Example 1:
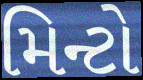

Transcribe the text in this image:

મિન્ટો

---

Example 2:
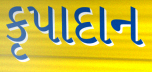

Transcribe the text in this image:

કૃપાદાન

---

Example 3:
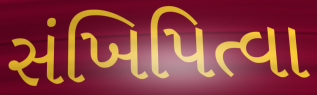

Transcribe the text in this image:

સંખિપિત્વા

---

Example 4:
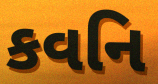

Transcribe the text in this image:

કવનિ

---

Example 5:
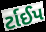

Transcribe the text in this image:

ર્ટાઈપ